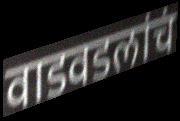
वाडवडलांचं